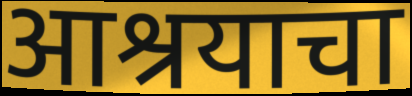
आश्रयाचा